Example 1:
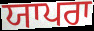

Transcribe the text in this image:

ਯਾਪਰਾ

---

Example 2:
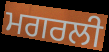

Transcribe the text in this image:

ਮਗਰਲੀ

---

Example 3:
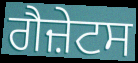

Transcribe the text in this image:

ਗੈਜ਼ੇਟਸ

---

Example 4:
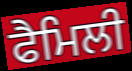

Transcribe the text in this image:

ਫੈਮਿਲੀ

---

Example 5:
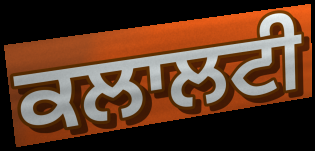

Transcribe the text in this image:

ਕਲਾਲਟੀ